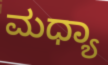
ಮಧ್ಯಾ